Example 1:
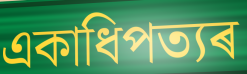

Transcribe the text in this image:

একাধিপত্যৰ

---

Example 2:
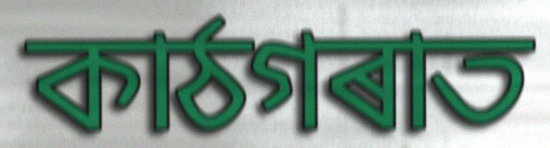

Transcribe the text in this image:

কাঠগৰাত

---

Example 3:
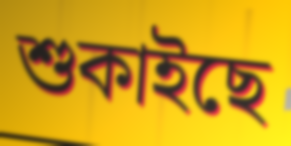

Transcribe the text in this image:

শুকাইছে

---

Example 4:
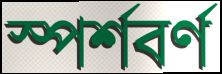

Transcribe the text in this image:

স্পৰ্শবৰ্ণ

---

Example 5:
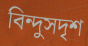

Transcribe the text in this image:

বিন্দুসদৃশ